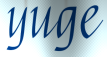
yuge